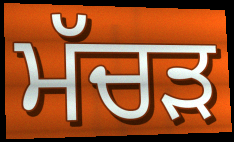
ਮੱਚੜ